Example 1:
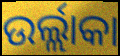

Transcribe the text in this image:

ଉର୍ଲ୍ଲାକା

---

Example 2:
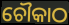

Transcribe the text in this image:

ଚୌକାଠ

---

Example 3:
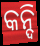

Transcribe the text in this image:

କନ୍ଦି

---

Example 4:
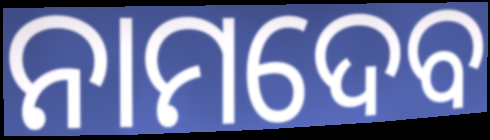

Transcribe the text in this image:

ନାମଦେବ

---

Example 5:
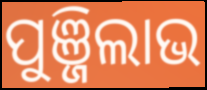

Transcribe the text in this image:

ପୁଞ୍ଜିଲାଭ